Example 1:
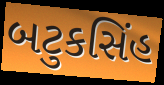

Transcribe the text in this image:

બટુકસિંહ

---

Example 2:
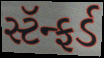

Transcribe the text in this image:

સ્ટૅન્ફર્ડ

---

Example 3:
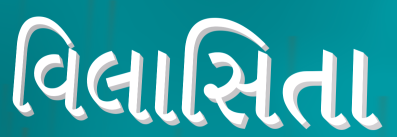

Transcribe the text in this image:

વિલાસિતા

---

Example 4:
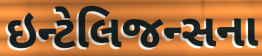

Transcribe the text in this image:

ઇન્ટેલિજન્સના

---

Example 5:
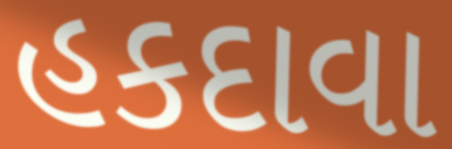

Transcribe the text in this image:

હકદાવા